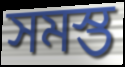
সমস্ত